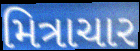
મિત્રાચાર